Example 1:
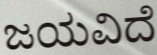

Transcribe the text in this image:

ಜಯವಿದೆ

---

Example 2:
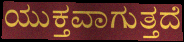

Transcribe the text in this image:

ಯುಕ್ತವಾಗುತ್ತದೆ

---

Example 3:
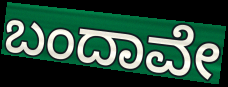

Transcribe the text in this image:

ಬಂದಾವೇ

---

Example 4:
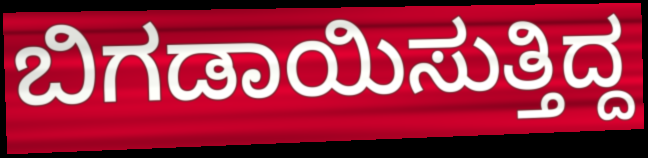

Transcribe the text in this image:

ಬಿಗಡಾಯಿಸುತ್ತಿದ್ದ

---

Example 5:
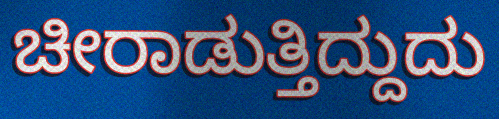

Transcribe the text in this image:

ಚೀರಾಡುತ್ತಿದ್ದುದು